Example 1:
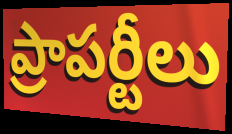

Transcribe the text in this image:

ప్రాపర్టీలు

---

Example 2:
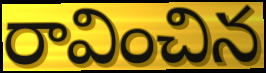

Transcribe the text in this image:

రావించిన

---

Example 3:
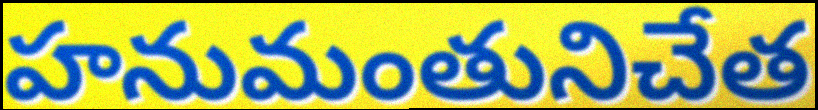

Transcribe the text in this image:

హనుమంతునిచేత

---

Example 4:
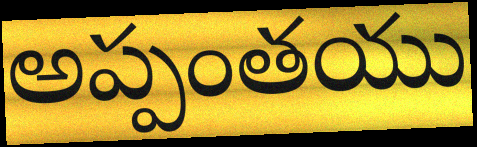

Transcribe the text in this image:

అప్పంతయు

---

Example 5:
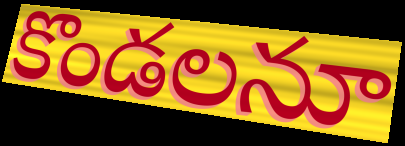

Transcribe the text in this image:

కొండలనూ